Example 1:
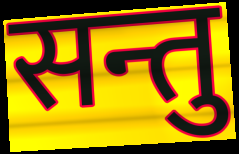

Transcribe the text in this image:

सन्‍तु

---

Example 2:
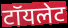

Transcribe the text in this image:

टॉयलेट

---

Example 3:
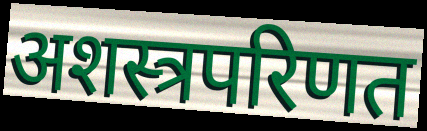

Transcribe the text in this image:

अशस्त्रपरिणत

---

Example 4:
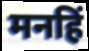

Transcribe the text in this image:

मनहिं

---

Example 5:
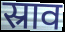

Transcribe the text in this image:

स्राव